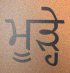
ਮੂੜ੍ਹੇ